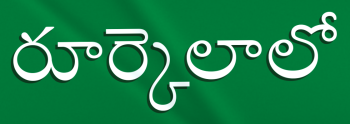
రూర్కెలాలో